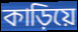
কাড়িয়ে